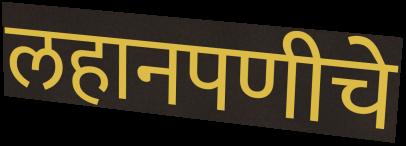
लहानपणीचे